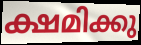
ക്ഷമിക്കു